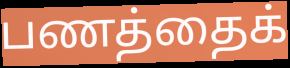
பணத்தைக்